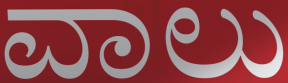
ವಾಲು